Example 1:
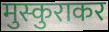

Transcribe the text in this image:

मुस्‍कुराकर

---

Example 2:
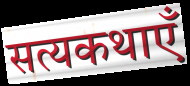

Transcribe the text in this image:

सत्यकथाएँ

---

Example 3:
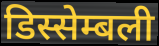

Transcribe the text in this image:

डिस्सेम्बली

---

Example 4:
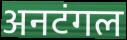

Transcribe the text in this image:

अनटंगल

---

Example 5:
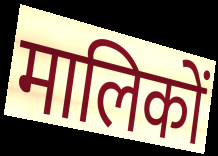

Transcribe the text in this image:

मालिकों